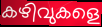
കഴിവുകളെ